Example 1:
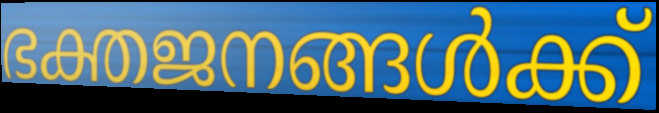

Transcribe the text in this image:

ഭക്തജനങ്ങൾക്ക്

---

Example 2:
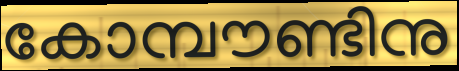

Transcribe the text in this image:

കോമ്പൗണ്ടിനു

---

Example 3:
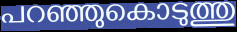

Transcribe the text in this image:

പറഞ്ഞുകൊടുത്തു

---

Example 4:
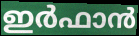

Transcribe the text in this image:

ഇർഫാൻ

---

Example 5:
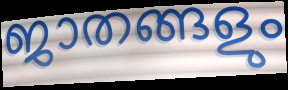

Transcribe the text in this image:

ജാതങ്ങളും